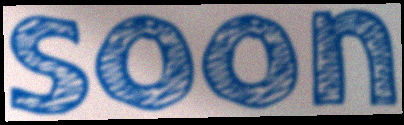
soon